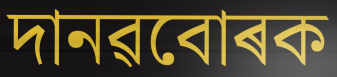
দানৱবোৰক